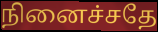
நினைச்சதே